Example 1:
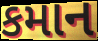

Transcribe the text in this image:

કમાન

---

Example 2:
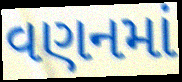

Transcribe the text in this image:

વણનમાં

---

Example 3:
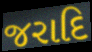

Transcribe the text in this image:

જરાદિ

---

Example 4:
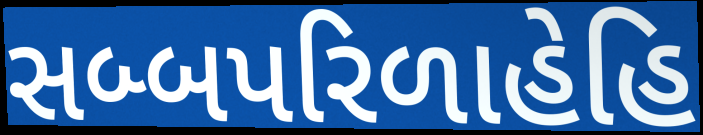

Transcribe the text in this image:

સબ્બપરિળાહેહિ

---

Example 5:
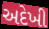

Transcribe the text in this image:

અદેખી